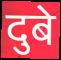
दुबे